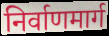
निर्वाणमार्ग